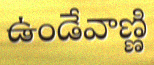
ఉండేవాణ్ణి